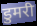
डुमरी